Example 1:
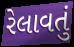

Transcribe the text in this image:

રેલાવતું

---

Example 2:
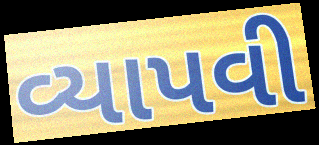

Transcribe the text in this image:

વ્યાપવી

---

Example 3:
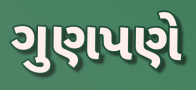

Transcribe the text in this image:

ગુણપણે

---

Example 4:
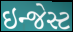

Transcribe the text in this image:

ઇન્જેસ્ટ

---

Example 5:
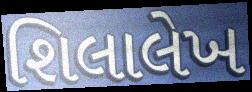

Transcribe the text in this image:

શિલાલેખ